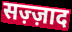
सज़्ज़ाद